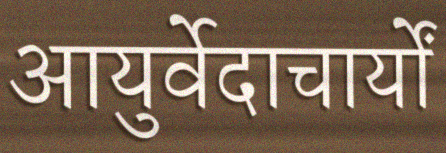
आयुर्वेदाचार्यों